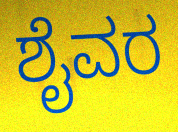
ಶೈವರ